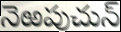
నెఱపుచున్